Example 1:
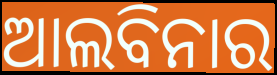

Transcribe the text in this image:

ଆଲବିନାର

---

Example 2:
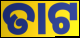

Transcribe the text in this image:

ତାଟ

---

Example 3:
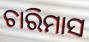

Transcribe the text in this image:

ଚାରିମାସ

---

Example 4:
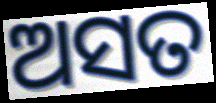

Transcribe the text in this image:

ଅସତ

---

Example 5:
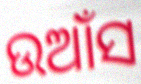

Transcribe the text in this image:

ଉଆଁସ